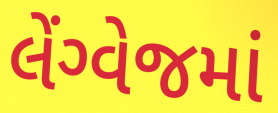
લેંગ્વેજમાં